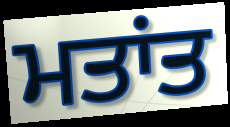
ਮਤਾਂਤ